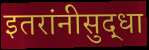
इतरांनीसुद्धा